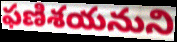
ఫణిశయనుని